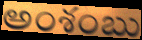
అంశంబు